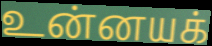
உன்னயக்